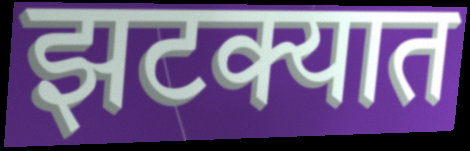
झटक्‍यात